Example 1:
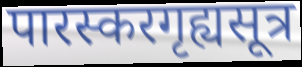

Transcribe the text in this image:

पारस्करगृह्यसूत्र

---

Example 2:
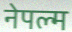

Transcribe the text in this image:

नेपल्म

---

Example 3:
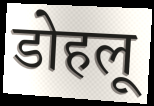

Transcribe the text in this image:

डोहलू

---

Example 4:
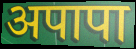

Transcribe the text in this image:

अपापा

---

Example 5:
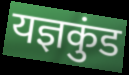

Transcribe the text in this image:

यज्ञकुंड